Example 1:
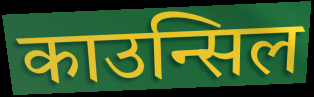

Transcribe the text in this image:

काउन्सिल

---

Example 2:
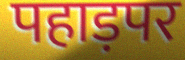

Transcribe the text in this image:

पहाड़पर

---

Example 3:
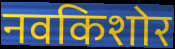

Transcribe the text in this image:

नवकिशोर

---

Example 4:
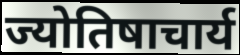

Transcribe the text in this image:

ज्योतिषाचार्य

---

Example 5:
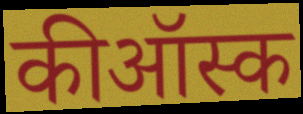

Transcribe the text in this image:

कीऑस्क